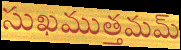
సుఖముత్తమమ్